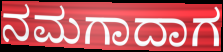
ನಮಗಾದಾಗ